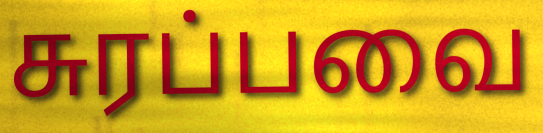
சுரப்பவை